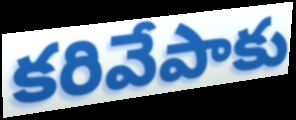
కరివేపాకు